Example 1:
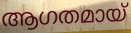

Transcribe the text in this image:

ആഗതമായ്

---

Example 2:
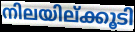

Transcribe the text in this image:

നിലയില്ക്കൂടി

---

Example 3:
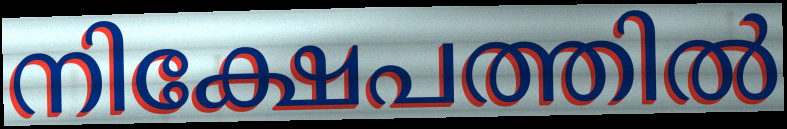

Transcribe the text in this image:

നിക്ഷേപത്തിൽ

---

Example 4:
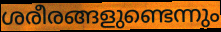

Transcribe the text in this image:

ശരീരങ്ങളുണ്ടെന്നും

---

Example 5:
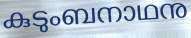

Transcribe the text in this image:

കുടുംബനാഥനു